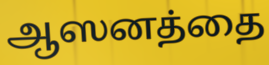
ஆஸனத்தை